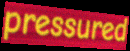
pressured